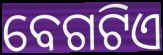
ବେଗଟିଏ